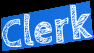
Clerk